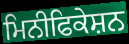
ਮਿਨੀਫਿਕੇਸ਼ਨ